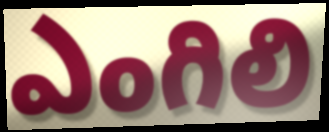
ఎంగిలి